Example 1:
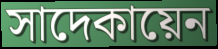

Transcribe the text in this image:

সাদেকায়েন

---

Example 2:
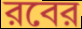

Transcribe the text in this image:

রবের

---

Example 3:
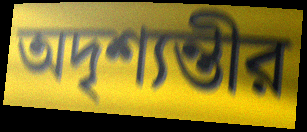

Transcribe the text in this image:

অদৃশ্যন্তীর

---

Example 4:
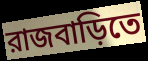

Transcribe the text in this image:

রাজবাড়িতে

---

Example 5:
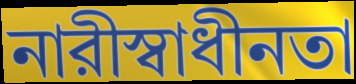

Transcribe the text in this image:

নারীস্বাধীনতা